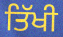
ਤਿੱਖੀ